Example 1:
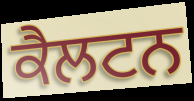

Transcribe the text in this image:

ਕੈਲਟਨ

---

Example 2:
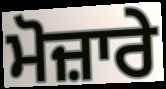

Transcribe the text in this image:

ਮੋਜ਼ਾਰੇ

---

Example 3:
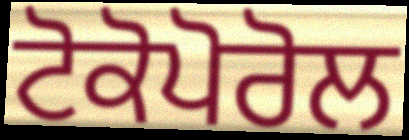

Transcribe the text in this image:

ਟੋਕੋਪੋਰੋਲ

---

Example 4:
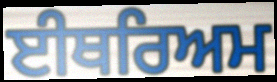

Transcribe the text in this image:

ਈਥਰਿਅਮ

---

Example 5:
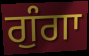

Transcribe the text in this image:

ਗੁੰਗਾ